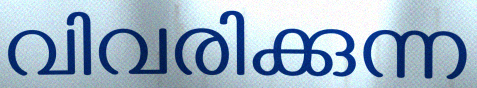
വിവരിക്കുന്ന